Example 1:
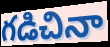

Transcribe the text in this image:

గడిచినా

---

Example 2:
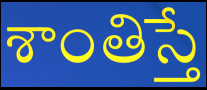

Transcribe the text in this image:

శాంతిస్తే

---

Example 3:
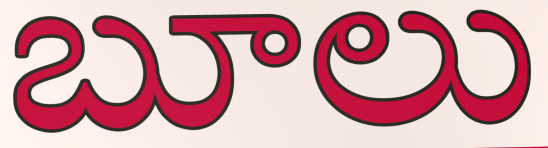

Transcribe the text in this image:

బూలు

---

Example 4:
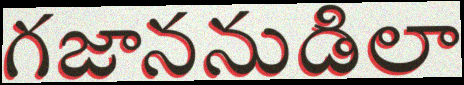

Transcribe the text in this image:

గజాననుడిలా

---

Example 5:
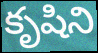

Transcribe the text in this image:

కృషిని